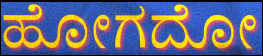
ಹೋಗದೋ